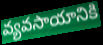
వ్యవసాయానికి